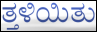
ತ್ತಳಿಯಿತು